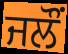
ਜਲੌਂ